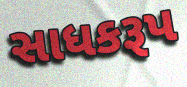
સાધકરૂપ